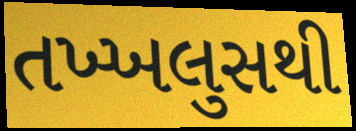
તખ્ખલુસથી